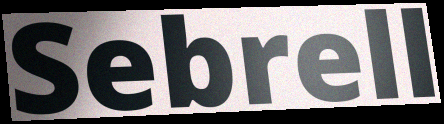
Sebrell